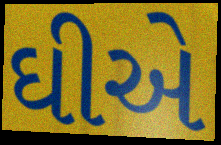
ઘીએ